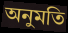
অনুমতি